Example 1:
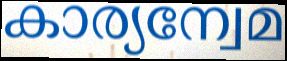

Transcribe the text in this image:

കാര്യന്വേമ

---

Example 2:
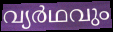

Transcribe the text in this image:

വ്യർഥവും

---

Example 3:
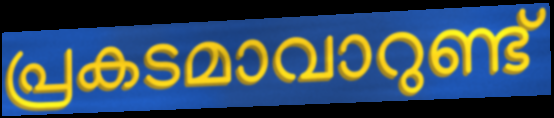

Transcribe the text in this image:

പ്രകടമാവാറുണ്ട്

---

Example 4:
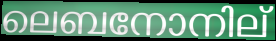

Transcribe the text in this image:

ലെബനോനില്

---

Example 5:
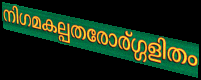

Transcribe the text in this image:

നിഗമകല്പതരോര്ഗ്ഗളിതം